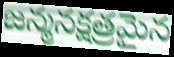
జన్మనక్షత్రమైన